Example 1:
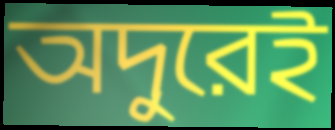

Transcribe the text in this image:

অদুরেই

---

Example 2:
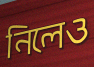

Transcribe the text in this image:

নিলেও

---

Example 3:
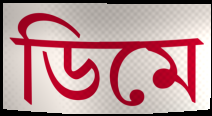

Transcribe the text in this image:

ডিমে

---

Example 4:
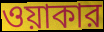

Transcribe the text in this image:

ওয়াকার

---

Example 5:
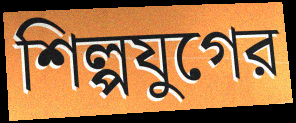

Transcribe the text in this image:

শিল্পযুগের